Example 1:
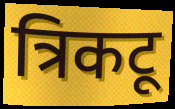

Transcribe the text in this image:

त्रिकटू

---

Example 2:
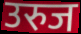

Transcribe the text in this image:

उरुज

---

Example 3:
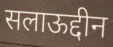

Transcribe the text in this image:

सलाऊद्दीन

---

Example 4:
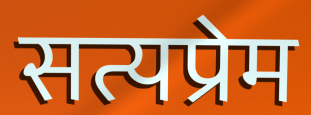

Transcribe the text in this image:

सत्यप्रेम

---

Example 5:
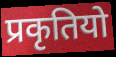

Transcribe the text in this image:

प्रकृतियो